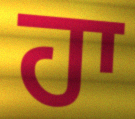
ਹਾ